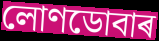
লোণডোবাৰ